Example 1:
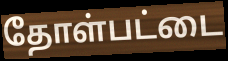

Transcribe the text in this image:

தோள்பட்டை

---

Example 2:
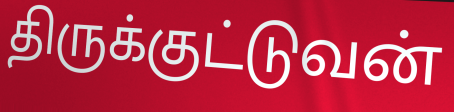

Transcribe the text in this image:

திருக்குட்டுவன்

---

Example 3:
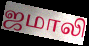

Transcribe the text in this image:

ஜமாலி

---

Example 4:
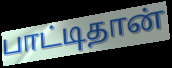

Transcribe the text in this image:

பாட்டிதான்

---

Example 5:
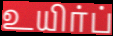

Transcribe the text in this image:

உயிர்ப்